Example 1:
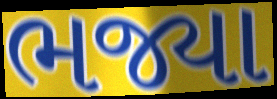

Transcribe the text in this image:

ભજ્યા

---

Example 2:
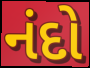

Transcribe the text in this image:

નંદો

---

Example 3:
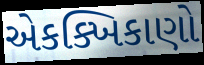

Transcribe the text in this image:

એકક્ખિકાણો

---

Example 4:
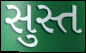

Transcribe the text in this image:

સુસ્ત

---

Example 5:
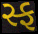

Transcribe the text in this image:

સ્ફ